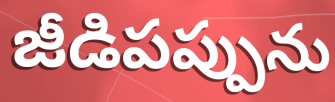
జీడిపప్పును